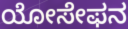
ಯೋಸೇಫನ